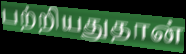
பற்றியதுதான்